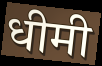
धीमी